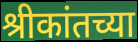
श्रीकांतच्या